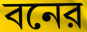
বনের